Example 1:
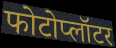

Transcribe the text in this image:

फोटोप्लॉटर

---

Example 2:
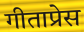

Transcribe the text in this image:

गीताप्रेस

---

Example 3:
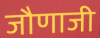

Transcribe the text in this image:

जौणाजी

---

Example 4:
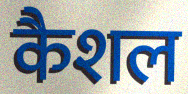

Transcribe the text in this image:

कैशल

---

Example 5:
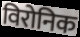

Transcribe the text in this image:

विरोनिक